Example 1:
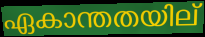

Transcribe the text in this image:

ഏകാന്തതയില്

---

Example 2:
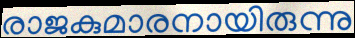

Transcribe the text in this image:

രാജകുമാരനായിരുന്നു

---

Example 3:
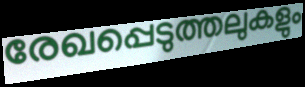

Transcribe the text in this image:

രേഖപ്പെടുത്തലുകളും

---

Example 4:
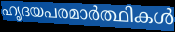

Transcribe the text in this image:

ഹൃദയപരമാർത്ഥികൾ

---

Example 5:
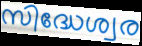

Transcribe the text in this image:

സിദ്ധേശ്വര